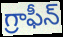
గ్రాఫీన్